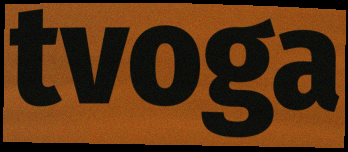
tvoga